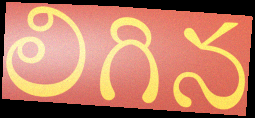
లిగిన